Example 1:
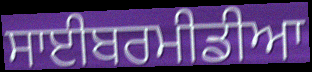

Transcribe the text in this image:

ਸਾਈਬਰਮੀਡੀਆ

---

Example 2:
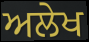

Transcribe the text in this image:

ਅਲੇਖ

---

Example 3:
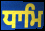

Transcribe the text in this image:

ਧਾਮਿ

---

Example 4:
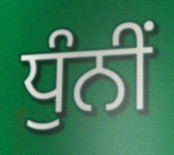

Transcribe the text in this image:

ਧੁੰਨੀਂ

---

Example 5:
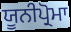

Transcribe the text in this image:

ਯੂਨੀਪ੍ਰੋਮਾ